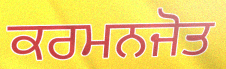
ਕਰਮਨਜੋਤ